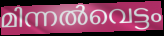
മിന്നൽവെട്ടം